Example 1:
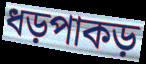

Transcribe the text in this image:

ধড়পাকড়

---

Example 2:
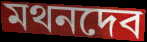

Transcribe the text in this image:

মথনদেব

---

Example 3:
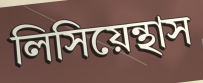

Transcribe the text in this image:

লিসিয়েন্থাস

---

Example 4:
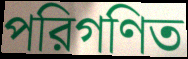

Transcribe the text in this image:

পরিগণিত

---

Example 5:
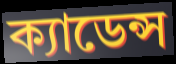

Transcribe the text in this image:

ক্যাডেন্স